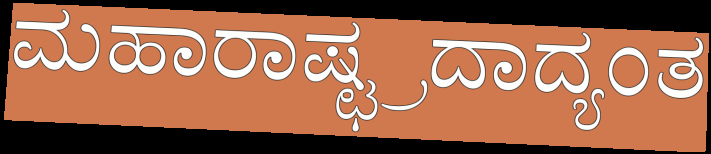
ಮಹಾರಾಷ್ಟ್ರದಾದ್ಯಂತ